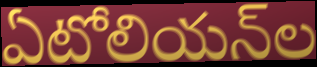
ఏటోలియన్‌ల